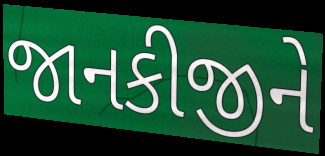
જાનકીજીને